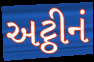
અટ્ઠીનં